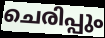
ചെരിപ്പും